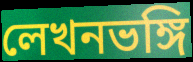
লেখনভঙ্গি